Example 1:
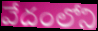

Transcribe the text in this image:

వేదంలోని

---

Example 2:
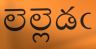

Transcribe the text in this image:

లెల్లెడఁ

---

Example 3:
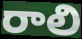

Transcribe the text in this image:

రాలి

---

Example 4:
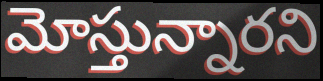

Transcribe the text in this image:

మోస్తున్నారని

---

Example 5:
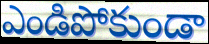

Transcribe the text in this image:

ఎండిపోకుండా